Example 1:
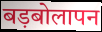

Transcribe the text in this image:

बड़बोलापन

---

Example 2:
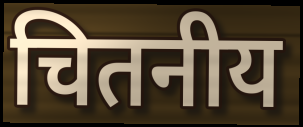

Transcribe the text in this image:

चितनीय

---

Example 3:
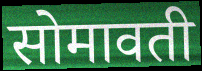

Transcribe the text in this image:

सोमावती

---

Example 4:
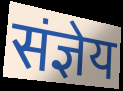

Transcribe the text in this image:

संज्ञेय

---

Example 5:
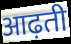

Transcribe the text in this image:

आढ़ती